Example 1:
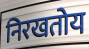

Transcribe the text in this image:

निरखतोय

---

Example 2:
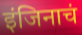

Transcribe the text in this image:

इंजिनाचं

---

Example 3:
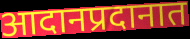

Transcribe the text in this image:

आदानप्रदानात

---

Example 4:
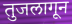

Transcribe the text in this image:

तुजलागून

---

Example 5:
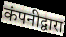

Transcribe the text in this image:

कंपनीद्वारा